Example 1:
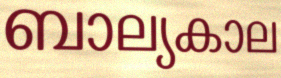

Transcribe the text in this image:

ബാല്യകാല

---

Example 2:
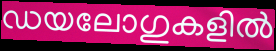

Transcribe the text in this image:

ഡയലോഗുകളിൽ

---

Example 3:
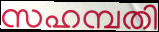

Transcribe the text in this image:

സഹമ്പതി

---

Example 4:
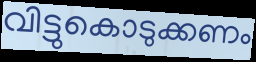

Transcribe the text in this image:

വിട്ടുകൊടുക്കണം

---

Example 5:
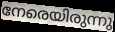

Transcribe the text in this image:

നേരെയിരുന്നു